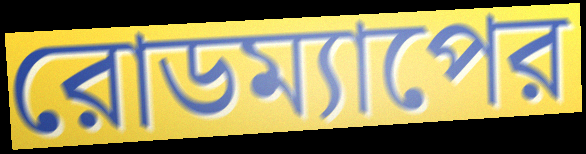
রোডম্যাপের